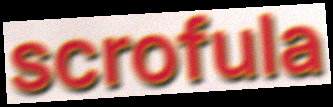
scrofula